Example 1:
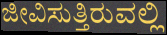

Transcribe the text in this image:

ಜೀವಿಸುತ್ತಿರುವಲ್ಲಿ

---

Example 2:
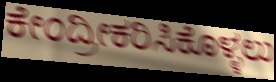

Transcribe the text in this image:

ಕೇಂದ್ರೀಕರಿಸಿಕೊಳ್ಳಲು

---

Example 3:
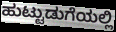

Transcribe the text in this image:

ಹುಟ್ಟುಡುಗೆಯಲ್ಲಿ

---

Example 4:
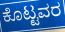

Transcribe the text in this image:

ಕೊಟ್ಟವರ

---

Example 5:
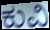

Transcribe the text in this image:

ಕುವಿ